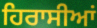
ਹਿਰਾਸੀਆਂ